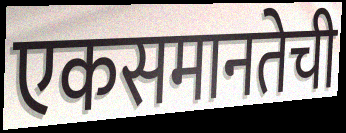
एकसमानतेची